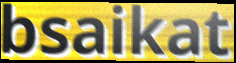
bsaikat